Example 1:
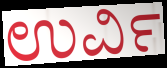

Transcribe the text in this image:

ಉರ್ವಿ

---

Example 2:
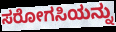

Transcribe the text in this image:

ಸರೋಗಸಿಯನ್ನು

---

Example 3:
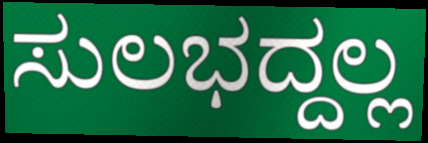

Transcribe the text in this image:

ಸುಲಭದ್ದಲ್ಲ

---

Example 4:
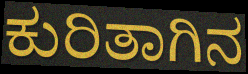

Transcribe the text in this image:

ಕುರಿತಾಗಿನ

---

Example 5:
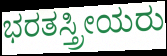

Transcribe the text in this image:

ಭರತಸ್ತ್ರೀಯರು